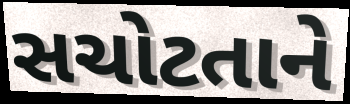
સચોટતાને